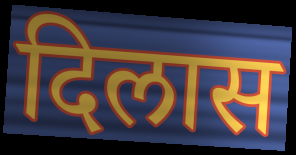
दिलास